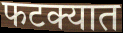
फटक्यात